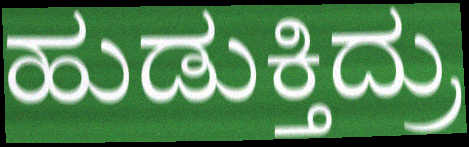
ಹುಡುಕ್ತಿದ್ರು